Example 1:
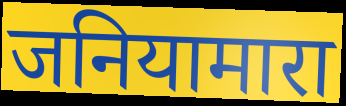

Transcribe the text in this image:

जनियामारा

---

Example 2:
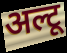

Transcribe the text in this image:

अल्टू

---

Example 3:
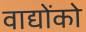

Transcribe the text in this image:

वाद्योंको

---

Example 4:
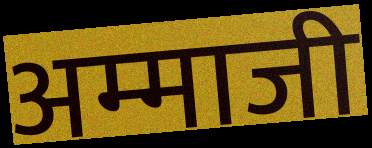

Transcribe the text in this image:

अम्माजी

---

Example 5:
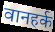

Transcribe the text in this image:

वानहर्क